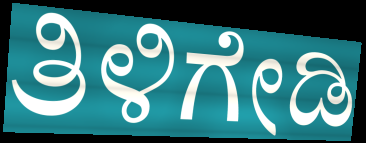
ತಿಳಿಗೇಡಿ